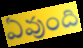
ఏవుంది